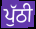
ਪੁੱਠੀ